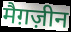
मैग़ज़ीन